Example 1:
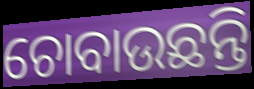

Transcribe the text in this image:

ଚୋବାଉଛନ୍ତି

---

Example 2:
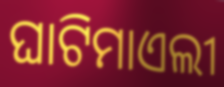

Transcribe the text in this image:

ଘାଟିମାଏଲୀ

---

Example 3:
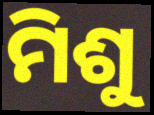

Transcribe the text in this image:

ମିଶୁ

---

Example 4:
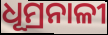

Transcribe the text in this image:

ଧୂମ୍ରନାଳୀ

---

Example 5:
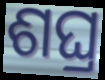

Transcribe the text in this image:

ଶଘ୍ର